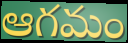
ఆగమం